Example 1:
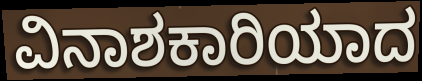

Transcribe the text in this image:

ವಿನಾಶಕಾರಿಯಾದ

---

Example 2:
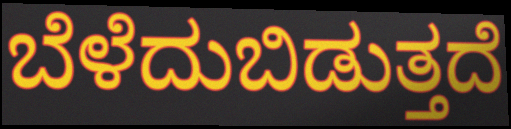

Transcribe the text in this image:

ಬೆಳೆದುಬಿಡುತ್ತದೆ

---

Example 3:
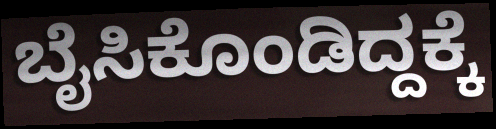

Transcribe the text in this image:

ಬೈಸಿಕೊಂಡಿದ್ದಕ್ಕೆ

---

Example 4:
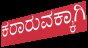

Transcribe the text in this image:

ಕರಾರುವಕ್ಕಾಗಿ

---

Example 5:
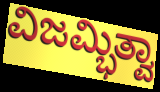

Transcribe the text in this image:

ವಿಜಮ್ಭಿತ್ವಾ